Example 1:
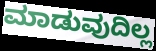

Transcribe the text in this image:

ಮಾಡುವುದಿಲ್ಲ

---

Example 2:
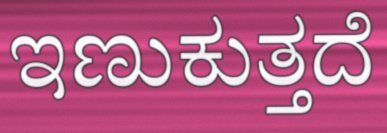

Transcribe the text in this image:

ಇಣುಕುತ್ತದೆ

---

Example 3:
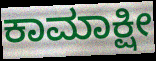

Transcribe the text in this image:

ಕಾಮಾಕ್ಷೀ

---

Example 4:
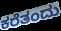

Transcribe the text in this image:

ಕರೆತಂದು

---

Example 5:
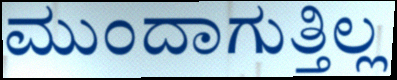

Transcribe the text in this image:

ಮುಂದಾಗುತ್ತಿಲ್ಲ